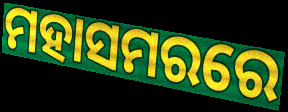
ମହାସମରରେ